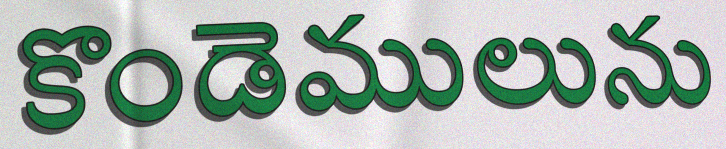
కొండెములును